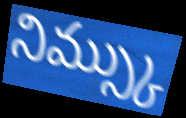
నిమ్స్కు